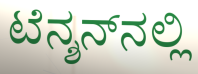
ಟೆನ್ಶನ್‌ನಲ್ಲಿ